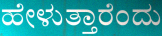
ಹೇಳುತ್ತಾರೆಂದು